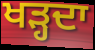
ਖੜ੍ਹਦਾ